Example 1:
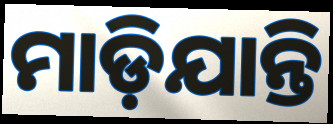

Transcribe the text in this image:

ମାଡ଼ିଯାନ୍ତି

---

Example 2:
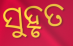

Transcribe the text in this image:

ସୁହୃତ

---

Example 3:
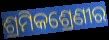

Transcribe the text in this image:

ଶ୍ରମିକଶ୍ରେଣୀର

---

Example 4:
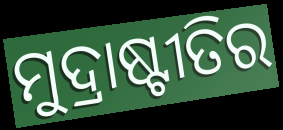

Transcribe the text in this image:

ମୁଦ୍ରାଷ୍ଟୀତିର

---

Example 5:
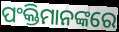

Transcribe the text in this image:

ପଂକ୍ତିମାନଙ୍କରେ